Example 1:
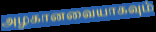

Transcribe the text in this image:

அழகானவையாகவும்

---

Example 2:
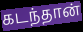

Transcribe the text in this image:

கடந்தான்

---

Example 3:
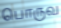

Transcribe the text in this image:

பொருவ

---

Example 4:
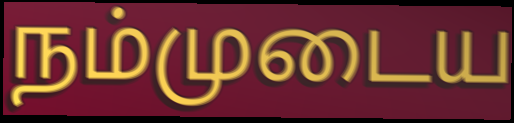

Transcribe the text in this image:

நம்முடைய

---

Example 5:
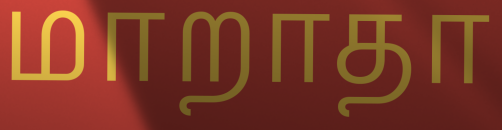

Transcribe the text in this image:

மாறாதா